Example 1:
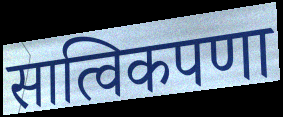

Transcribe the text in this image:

सात्विकपणा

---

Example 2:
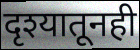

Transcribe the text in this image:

दृश्यातूनही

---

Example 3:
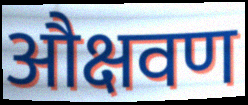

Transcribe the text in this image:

औक्षवण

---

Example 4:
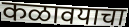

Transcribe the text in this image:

कळावयाचा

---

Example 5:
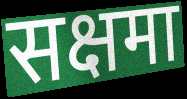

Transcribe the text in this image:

सक्षमा